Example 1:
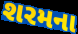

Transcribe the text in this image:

શરમના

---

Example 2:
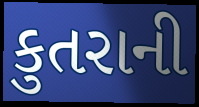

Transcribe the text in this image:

કુતરાની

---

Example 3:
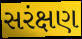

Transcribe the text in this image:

સરંક્ષણ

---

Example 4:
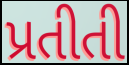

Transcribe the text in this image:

પ્રતીતી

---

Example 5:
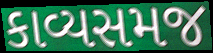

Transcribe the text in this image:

કાવ્યસમજ